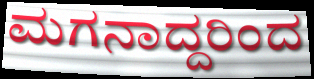
ಮಗನಾದ್ದರಿಂದ